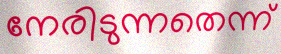
നേരിടുന്നതെന്ന്